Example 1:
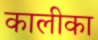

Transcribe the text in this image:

कालीका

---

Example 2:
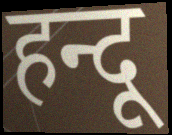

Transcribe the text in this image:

हन्दू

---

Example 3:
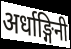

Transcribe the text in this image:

अर्धाङ्गिनी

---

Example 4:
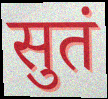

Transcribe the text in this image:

सुतं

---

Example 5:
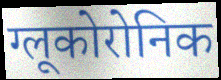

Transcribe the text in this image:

ग्लूकोरोनिक